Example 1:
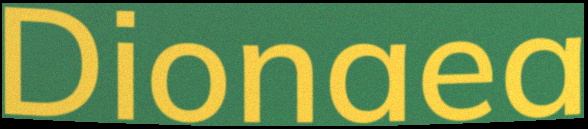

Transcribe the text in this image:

Dionaea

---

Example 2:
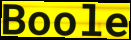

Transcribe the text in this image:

Boole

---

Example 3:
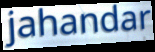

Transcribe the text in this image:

jahandar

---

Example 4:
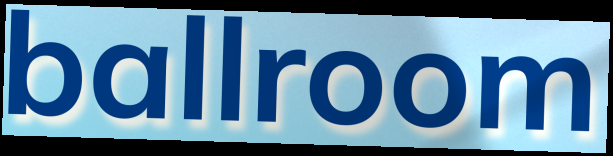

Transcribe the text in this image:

ballroom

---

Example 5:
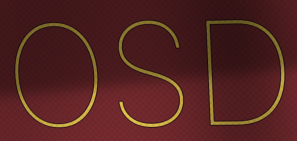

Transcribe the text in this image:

OSD